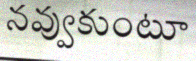
నవ్వుకుంటూ